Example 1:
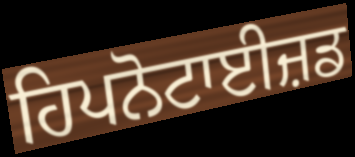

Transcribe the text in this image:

ਹਿਪਨੋਟਾਈਜ਼ਡ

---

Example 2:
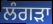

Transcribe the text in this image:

ਲੰਗੜਾ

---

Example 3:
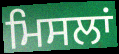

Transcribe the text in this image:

ਮਿਸਲਾਂ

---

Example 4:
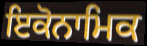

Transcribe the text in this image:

ਇਕੋਨਾਮਿਕ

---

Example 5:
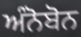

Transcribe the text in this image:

ਅੰਨੋਬੋਨ